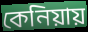
কেনিয়ায়